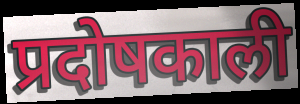
प्रदोषकाली